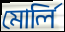
মোর্লি